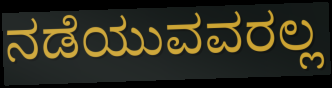
ನಡೆಯುವವರಲ್ಲ